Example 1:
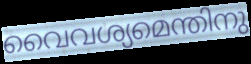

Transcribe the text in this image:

വൈവശ്യമെന്തിനു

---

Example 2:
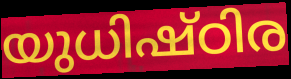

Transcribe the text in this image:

യുധിഷ്ഠിര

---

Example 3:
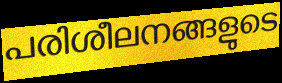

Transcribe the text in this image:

പരിശീലനങ്ങളുടെ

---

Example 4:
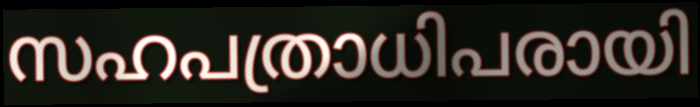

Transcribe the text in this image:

സഹപത്രാധിപരായി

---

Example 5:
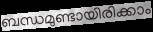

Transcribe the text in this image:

ബന്ധമുണ്ടായിരിക്കാം